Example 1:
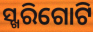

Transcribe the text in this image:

ସ୍ଖରିଗୋଟି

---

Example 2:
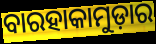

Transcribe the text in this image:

ବାରହାକାମୁଡ଼ାର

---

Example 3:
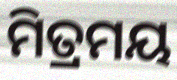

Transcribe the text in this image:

ମିତ୍ରମୟ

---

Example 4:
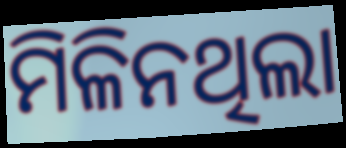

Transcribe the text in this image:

ମିଳିନଥିଲା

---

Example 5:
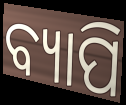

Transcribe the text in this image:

ବ୍ଯାପି